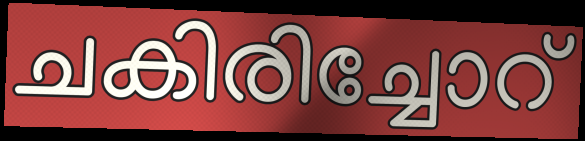
ചകിരിച്ചോറ്